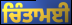
ਚਿੰਤਾਮਈ